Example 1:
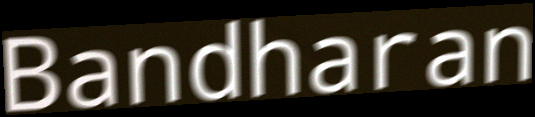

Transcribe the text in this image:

Bandharan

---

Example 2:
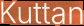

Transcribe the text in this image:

Kuttan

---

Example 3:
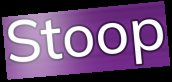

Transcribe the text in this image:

Stoop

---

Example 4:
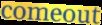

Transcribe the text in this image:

comeout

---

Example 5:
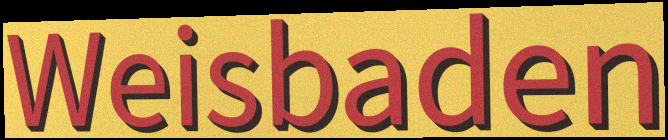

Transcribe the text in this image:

Weisbaden